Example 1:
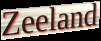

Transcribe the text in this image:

Zeeland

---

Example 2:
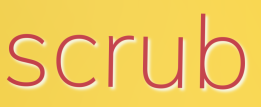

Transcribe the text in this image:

scrub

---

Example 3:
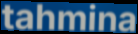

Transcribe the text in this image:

tahmina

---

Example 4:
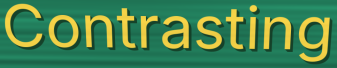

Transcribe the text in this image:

Contrasting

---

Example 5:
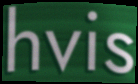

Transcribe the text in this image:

hvis